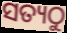
ସତ୍ୟଠୁ